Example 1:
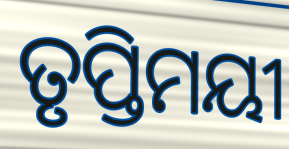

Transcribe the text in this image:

ତୃପ୍ତିମୟୀ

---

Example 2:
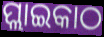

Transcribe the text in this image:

ପ୍ଲାଇକାଠ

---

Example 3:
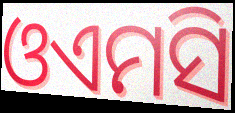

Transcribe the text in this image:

ଓଏମସି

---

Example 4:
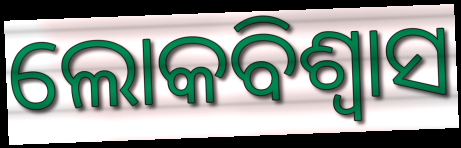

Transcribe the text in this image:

ଲୋକବିଶ୍ୱାସ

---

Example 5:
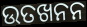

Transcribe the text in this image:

ଉତଖନନ